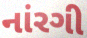
નાંરગી